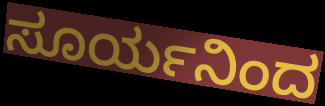
ಸೂರ್ಯನಿಂದ